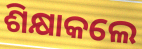
ଶିକ୍ଷାକଲେ